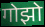
गोझो